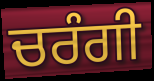
ਚਰੰਗੀ